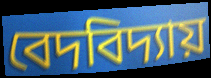
বেদবিদ্যায়